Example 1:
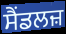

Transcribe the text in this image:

ਸੈਂਡਲਜ਼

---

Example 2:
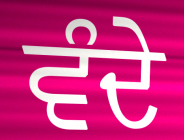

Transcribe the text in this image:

ਵੰਦੇ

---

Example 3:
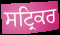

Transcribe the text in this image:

ਸਟ੍ਰਿਕਰ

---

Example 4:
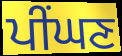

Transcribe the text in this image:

ਪੀਂਘਣ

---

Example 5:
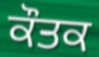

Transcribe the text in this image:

ਕੌਤਕ